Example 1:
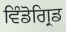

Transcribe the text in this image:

ਵਿੰਡੋਗ੍ਰਿਡ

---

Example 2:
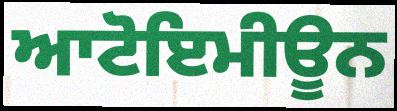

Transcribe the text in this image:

ਆਟੋਇਮੀਊਨ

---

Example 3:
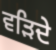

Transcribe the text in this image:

ਵੜਿਦੇ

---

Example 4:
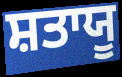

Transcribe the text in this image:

ਸ਼ਤਾਯੂ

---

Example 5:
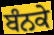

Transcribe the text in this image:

ਬੰਨਕੇ